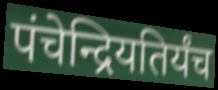
पंचेन्द्रियतिर्यंच